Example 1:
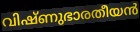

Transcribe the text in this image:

വിഷ്ണുഭാരതീയൻ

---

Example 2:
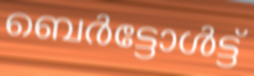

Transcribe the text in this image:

ബെർട്ടോൾട്ട്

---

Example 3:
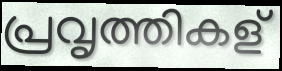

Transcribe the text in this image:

പ്രവൃത്തികള്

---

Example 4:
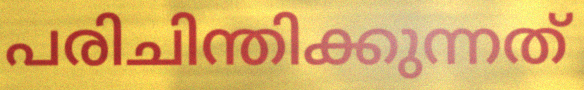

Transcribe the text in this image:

പരിചിന്തിക്കുന്നത്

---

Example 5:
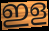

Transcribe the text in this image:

ഇള